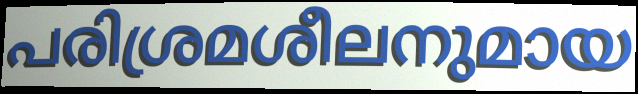
പരിശ്രമശീലനുമായ